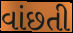
વાંછતી